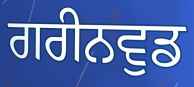
ਗਰੀਨਵੁਡ